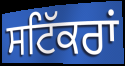
ਸਟਿੱਕਰਾਂ